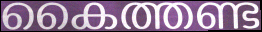
കൈത്തണ്ട